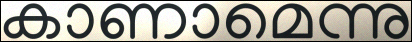
കാണാമെന്നു